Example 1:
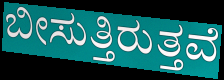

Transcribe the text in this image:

ಬೀಸುತ್ತಿರುತ್ತವೆ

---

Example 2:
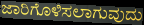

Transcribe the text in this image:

ಜಾರಿಗೊಳಿಸಲಾಗುವುದು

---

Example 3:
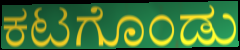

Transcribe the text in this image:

ಕಟಗೊಂಡು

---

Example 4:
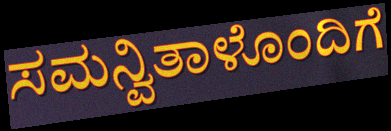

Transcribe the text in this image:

ಸಮನ್ವಿತಾಳೊಂದಿಗೆ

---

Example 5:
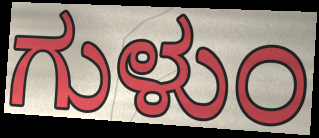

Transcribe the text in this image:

ಗುಳುಂ